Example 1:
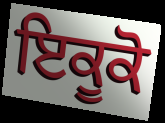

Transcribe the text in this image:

ਇਕੂਕੋ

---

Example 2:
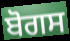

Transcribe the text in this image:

ਬੋਗਸ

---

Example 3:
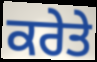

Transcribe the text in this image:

ਕਰੇਤੇ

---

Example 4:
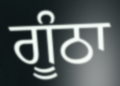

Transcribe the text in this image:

ਗੂੰਠਾ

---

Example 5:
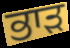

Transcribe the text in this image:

ਭਾੜ